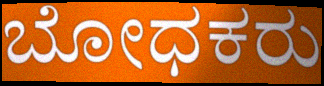
ಬೋಧಕರು